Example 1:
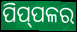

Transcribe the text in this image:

ପିପ୍‌ପଳର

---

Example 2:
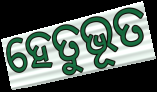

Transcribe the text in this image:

ହେତୁଭୂତ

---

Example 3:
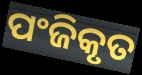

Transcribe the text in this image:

ପଂଜିକୃତ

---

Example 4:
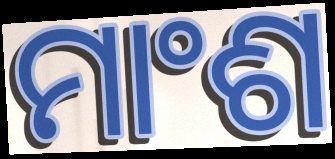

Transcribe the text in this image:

ମାଂଶ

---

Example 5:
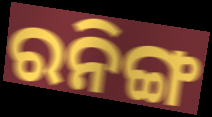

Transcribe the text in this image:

ରନିଙ୍ଗ